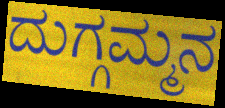
ದುಗ್ಗಮ್ಮನ